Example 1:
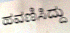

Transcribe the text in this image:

ಹವಣಿಸಿದ್ದು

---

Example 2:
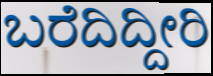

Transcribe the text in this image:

ಬರೆದಿದ್ದೀರಿ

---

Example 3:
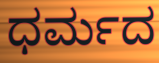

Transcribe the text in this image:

ಧರ್ಮದ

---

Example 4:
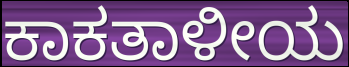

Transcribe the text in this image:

ಕಾಕತಾಳೀಯ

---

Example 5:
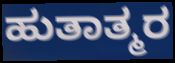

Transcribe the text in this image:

ಹುತಾತ್ಮರ